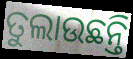
ତୁଲାଉଛନ୍ତି